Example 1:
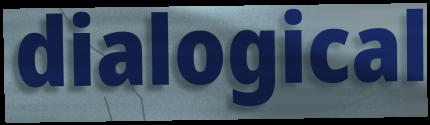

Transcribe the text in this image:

dialogical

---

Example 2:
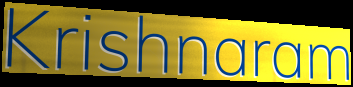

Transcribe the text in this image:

Krishnaram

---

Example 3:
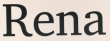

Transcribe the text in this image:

Rena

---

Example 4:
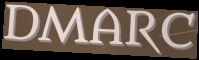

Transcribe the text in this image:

DMARC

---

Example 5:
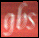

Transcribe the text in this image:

gbs